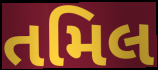
તમિલ